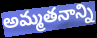
అమ్మతనాన్ని